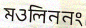
মওলিননং